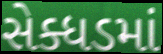
સેક્ધડમાં